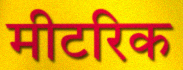
मीटरिक